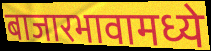
बाजारभावामध्ये